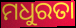
ମଧୁରତା